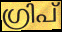
ഗ്രിപ്